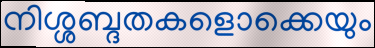
നിശ്ശബ്ദതകളൊക്കെയും